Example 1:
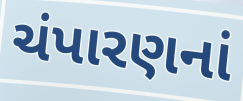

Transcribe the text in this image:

ચંપારણનાં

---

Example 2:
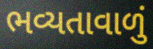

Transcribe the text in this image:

ભવ્યતાવાળું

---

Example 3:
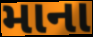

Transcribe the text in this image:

માના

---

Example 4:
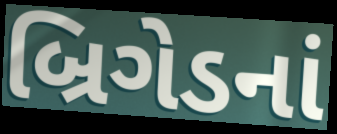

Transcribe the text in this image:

બ્રિગેડનાં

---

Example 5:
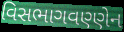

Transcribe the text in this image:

વિસભાગવણ્ણેન